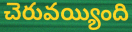
చెరువయ్యింది